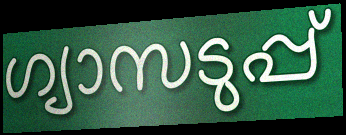
ഗ്യാസടുപ്പ്